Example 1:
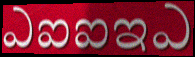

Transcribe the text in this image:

ఎఐఐఇఎ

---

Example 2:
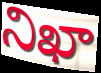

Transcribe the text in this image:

నిఖా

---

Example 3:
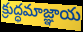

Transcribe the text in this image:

క్రుద్ధమాజ్ఞాయ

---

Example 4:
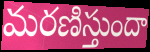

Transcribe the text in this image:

మరణిస్తుందా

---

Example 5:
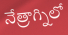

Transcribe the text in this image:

నేత్రాగ్నిలో